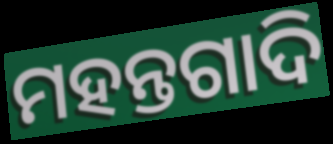
ମହନ୍ତଗାଦି